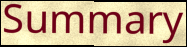
Summary